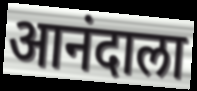
आनंदाला